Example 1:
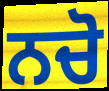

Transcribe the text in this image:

ਨਚੋ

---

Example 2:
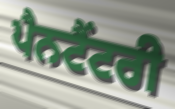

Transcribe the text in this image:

ਪੈਨਟੈਂਟਰੀ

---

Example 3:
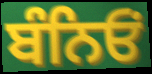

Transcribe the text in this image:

ਬੰਨਿਓਂ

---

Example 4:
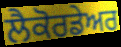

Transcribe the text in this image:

ਲੈਕੋਰਡੇਅਰ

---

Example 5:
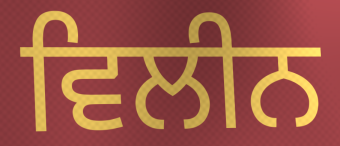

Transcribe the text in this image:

ਵਿਲੀਨ